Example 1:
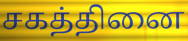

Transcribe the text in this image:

சகத்தினை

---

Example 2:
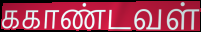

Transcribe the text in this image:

ககாண்டவள்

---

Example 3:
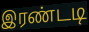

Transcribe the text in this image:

இரண்டடி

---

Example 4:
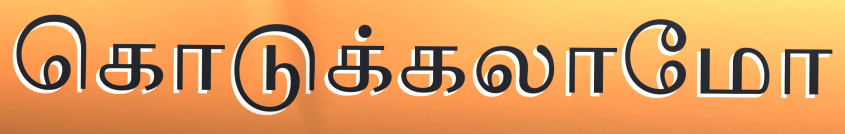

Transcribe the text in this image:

கொடுக்கலாமோ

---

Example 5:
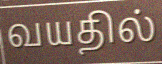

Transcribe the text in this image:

வயதில்